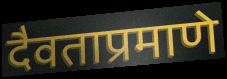
दैवताप्रमाणे